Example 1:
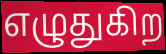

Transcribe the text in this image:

எழுதுகிற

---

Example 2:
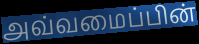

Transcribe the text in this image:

அவ்வமைப்பின்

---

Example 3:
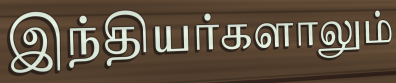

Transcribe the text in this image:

இந்தியர்களாலும்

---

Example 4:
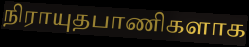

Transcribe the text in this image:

நிராயுதபாணிகளாக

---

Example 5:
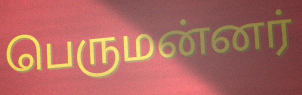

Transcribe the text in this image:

பெருமன்னர்